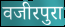
वजीरपुरा